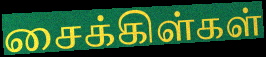
சைக்கிள்கள்